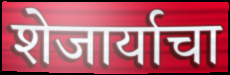
शेजार्याचा